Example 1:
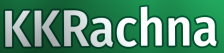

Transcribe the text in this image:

KKRachna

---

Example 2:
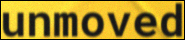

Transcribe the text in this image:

unmoved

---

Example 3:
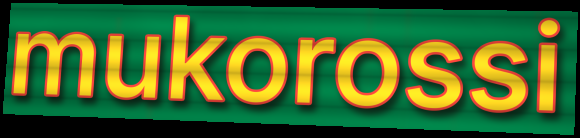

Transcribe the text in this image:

mukorossi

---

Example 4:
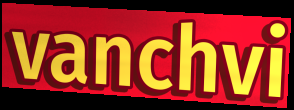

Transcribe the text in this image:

vanchvi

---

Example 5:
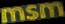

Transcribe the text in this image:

msm